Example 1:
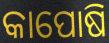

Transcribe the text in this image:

କାପୋଷି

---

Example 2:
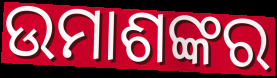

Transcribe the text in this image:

ଉମାଶଙ୍କର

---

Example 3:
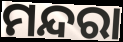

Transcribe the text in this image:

ମନ୍ଦରା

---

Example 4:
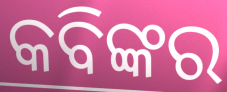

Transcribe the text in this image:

କବିଙ୍କର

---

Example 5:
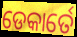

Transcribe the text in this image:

ଡେକାର୍ତେ